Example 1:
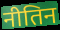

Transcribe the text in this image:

नीतिन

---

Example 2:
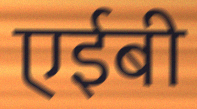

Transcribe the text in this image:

एईबी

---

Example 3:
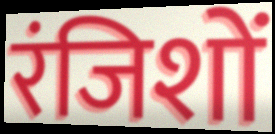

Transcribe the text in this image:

रंजिशों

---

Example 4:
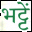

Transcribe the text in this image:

भट्टें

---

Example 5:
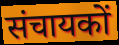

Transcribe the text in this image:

संचायकों